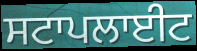
ਸਟਾਪਲਾਈਟ